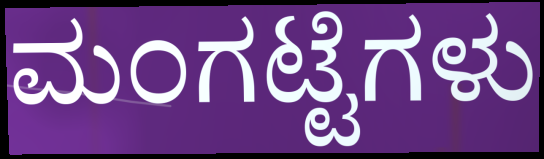
ಮಂಗಟ್ಟೆಗಳು